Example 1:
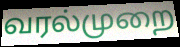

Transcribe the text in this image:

வரல்முறை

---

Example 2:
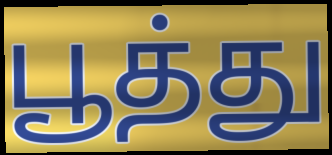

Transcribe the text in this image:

பூத்து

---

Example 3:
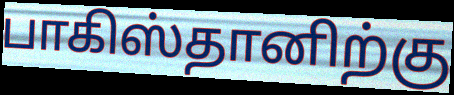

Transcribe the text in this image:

பாகிஸ்தானிற்கு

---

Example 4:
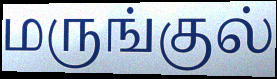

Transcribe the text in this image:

மருங்குல்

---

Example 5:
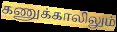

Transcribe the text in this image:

கணுக்காலிலும்